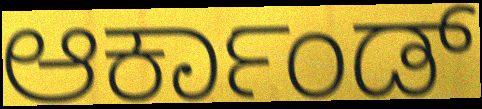
ಆರ್ಕಾಂಡ್